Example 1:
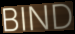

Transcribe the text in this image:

BIND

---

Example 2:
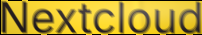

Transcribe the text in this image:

Nextcloud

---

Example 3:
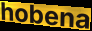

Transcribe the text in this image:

hobena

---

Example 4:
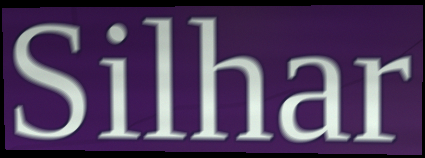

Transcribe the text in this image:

Silhar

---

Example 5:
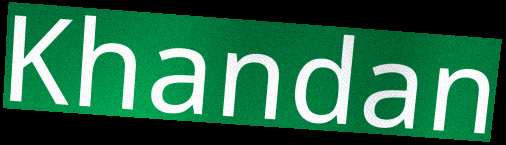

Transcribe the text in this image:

Khandan